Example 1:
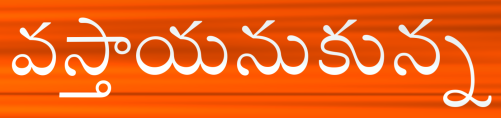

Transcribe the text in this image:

వస్తాయనుకున్న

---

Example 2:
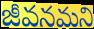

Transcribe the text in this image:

జీవనమని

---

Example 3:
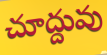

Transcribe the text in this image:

చూద్దువు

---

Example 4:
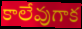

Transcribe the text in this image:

కాలేవుగాక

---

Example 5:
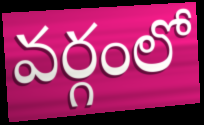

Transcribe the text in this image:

వర్గంలో